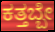
ಕತ್ತಬ್ಬೇ